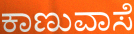
ಕಾಣುವಾಸೆ